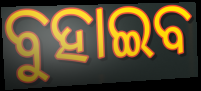
ବୁହାଇବ